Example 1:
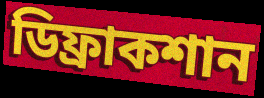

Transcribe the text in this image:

ডিফ্রাকশান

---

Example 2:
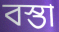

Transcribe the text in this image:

বস্তা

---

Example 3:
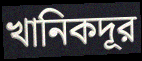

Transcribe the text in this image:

খানিকদূর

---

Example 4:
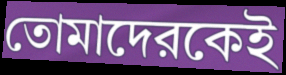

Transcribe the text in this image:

তোমাদেরকেই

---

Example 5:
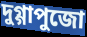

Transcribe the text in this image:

দুগ্গাপুজো